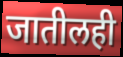
जातीलही